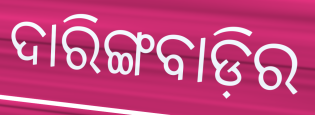
ଦାରିଙ୍ଗବାଡ଼ିର